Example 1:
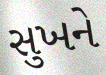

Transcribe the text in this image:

સુખને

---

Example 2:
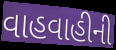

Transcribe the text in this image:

વાહવાહીની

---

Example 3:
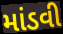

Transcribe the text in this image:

માંડવી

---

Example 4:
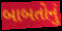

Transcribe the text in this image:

બાબતોનું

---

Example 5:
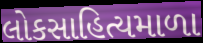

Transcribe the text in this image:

લોકસાહિત્યમાળા